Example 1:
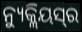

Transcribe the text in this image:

ନ୍ୟୁକ୍ଲିୟସ୍‌ର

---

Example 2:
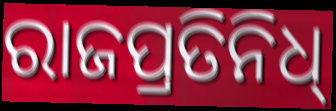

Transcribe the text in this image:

ରାଜପ୍ରତିନିଧ୍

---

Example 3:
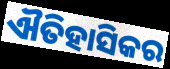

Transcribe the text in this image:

ଐତିହାସିକର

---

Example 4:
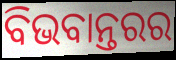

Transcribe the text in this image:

ବିଭବାନ୍ତରର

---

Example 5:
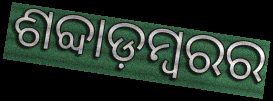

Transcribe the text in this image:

ଶବ୍ଦାଡ଼ମ୍ବରର